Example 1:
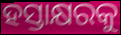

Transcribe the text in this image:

ହସ୍ତାକ୍ଷରକୁ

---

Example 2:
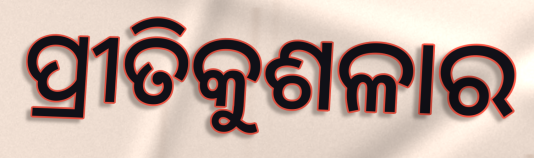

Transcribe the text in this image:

ପ୍ରୀତିକୁଶଳାର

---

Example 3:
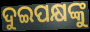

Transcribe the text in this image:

ଦୁଇପକ୍ଷଙ୍କୁ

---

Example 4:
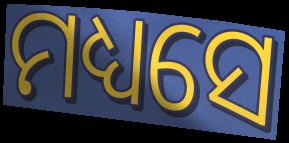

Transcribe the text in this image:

ମଧ୍ୟସେ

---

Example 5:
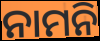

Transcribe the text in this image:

ନାମନି